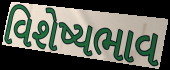
વિશેષ્યભાવ